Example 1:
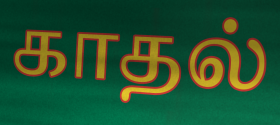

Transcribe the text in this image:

காதல்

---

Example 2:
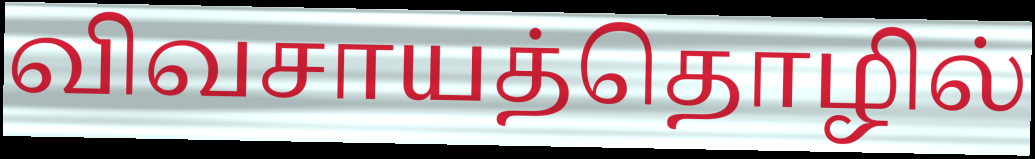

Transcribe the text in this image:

விவசாயத்தொழில்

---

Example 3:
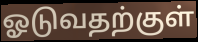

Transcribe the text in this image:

ஓடுவதற்குள்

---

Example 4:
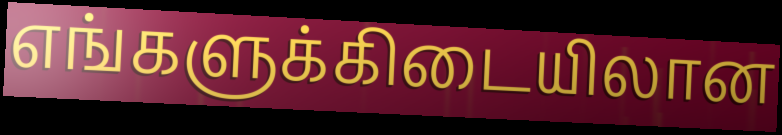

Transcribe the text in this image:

எங்களுக்கிடையிலான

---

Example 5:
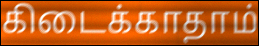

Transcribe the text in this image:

கிடைக்காதாம்